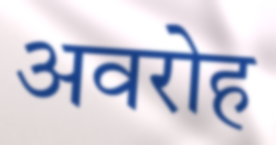
अवरोह